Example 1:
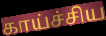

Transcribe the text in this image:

காய்ச்சிய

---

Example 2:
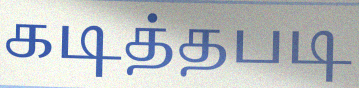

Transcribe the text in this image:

கடித்தபடி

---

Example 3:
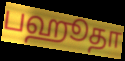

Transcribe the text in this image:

பஹூதா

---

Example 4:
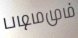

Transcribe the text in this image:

படிமமும்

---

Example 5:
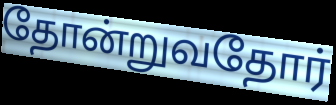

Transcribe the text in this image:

தோன்றுவதோர்